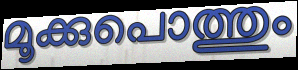
മൂക്കുപൊത്തും